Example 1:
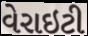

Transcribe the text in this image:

વેરાઇટી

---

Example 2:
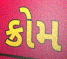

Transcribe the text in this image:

ક્રોમ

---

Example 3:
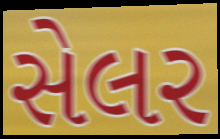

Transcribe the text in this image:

સેલર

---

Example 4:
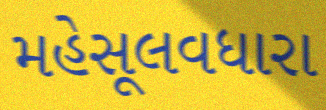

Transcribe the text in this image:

મહેસૂલવધારા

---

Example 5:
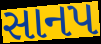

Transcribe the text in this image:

સાનપ